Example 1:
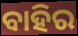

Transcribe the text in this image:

ବାହିର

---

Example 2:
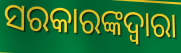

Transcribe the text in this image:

ସରକାରଙ୍କଦ୍ବାରା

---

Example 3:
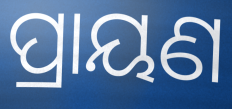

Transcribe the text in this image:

ପ୍ରାୟଣ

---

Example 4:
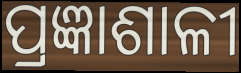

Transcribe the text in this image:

ପ୍ରଜ୍ଞାଶାଳୀ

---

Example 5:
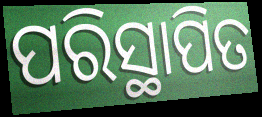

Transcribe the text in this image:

ପରିସ୍ଥାପିତ